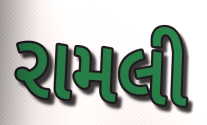
રામલી